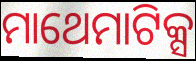
ମାଥେମାଟିକ୍ସ